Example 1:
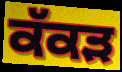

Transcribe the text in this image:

ਕੱਕੜ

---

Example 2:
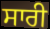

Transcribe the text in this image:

ਸਾਰੀ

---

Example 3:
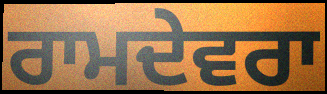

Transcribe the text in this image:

ਰਾਮਦੇਵਰਾ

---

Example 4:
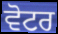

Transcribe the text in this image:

ਵੋਟਰ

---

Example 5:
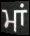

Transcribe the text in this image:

ਮਾਂ